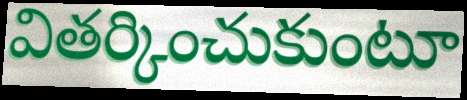
వితర్కించుకుంటూ